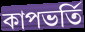
কাপভর্তি